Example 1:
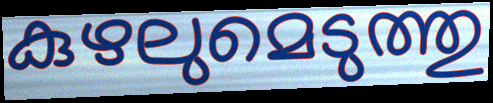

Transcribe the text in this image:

കുഴലുമെടുത്തു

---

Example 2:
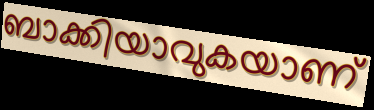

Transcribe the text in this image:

ബാക്കിയാവുകയാണ്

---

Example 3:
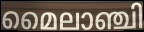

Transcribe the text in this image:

മൈലാഞ്ചി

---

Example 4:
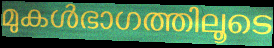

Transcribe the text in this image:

മുകൾഭാഗത്തിലൂടെ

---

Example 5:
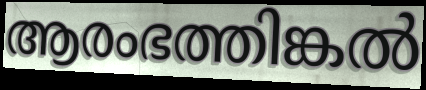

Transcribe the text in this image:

ആരംഭത്തിങ്കൽ